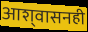
आश्वासनही